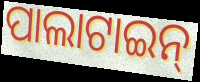
ପାଲାଟାଇନ୍